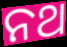
ନଥ